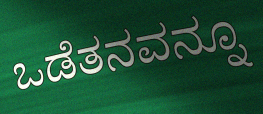
ಒಡೆತನವನ್ನೂ